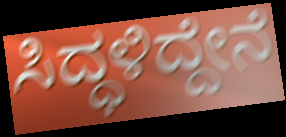
ಸಿದ್ಧಳಿದ್ದೇನೆ